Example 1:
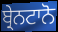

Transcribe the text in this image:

ਬ੍ਰੇਨਟਾਨੋ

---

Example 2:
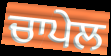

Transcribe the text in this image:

ਚਾਪੇਲ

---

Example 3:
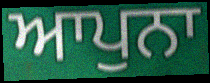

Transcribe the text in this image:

ਆਪੁਨਾ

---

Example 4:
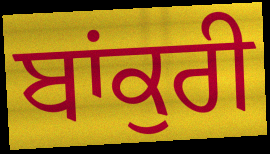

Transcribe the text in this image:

ਬਾਂਕੁਰੀ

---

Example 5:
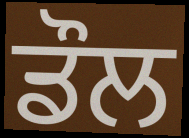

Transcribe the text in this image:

ਡੌਲ